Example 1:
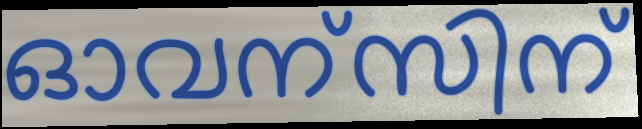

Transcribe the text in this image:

ഓവന്സിന്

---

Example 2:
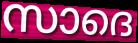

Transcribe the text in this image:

സാദെ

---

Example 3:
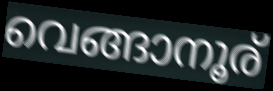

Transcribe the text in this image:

വെങ്ങാനൂര്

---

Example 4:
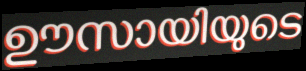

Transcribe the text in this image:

ഊസായിയുടെ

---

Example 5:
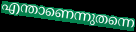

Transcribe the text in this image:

എന്താണെന്നുതന്നെ